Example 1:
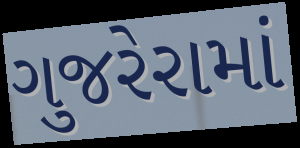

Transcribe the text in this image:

ગુજરેરામાં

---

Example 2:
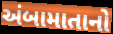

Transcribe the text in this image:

અંબામાતાનો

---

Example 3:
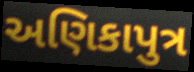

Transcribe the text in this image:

અણિકાપુત્ર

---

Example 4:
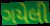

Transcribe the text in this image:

ગયેલી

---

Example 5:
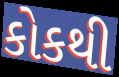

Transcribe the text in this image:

કોકથી